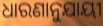
ଧାରଣାନୁଯାୟୀ